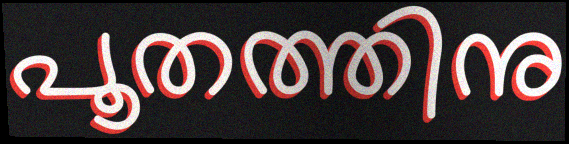
പൂതത്തിനു